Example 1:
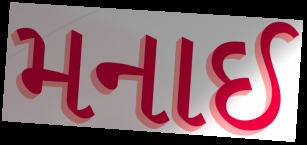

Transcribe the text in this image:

મનાઈ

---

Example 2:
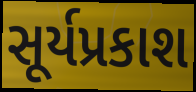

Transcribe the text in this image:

સૂર્યપ્રકાશ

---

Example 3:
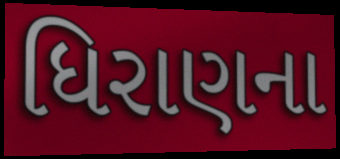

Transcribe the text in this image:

ધિરાણના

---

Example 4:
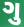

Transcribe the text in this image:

ગુ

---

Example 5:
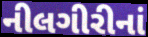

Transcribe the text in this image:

નીલગીરીનાં